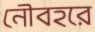
নৌবহরে